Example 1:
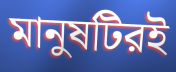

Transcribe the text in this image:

মানুষটিরই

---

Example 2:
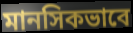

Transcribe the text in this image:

মানসিকভাবে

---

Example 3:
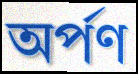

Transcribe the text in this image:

অর্পণ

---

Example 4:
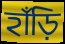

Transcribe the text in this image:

হাঁড়ি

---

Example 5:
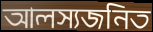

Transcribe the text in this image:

আলস্যজনিত